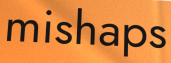
mishaps